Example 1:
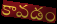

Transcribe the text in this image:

కావడం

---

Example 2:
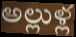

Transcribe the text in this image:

అల్లుళ్ల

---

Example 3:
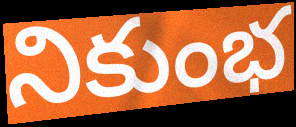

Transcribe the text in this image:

నికుంభ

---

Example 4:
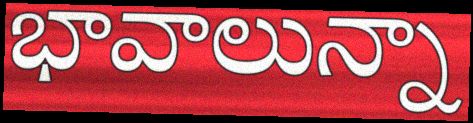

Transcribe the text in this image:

భావాలున్నా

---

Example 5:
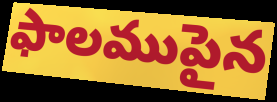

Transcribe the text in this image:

ఫాలముపైన